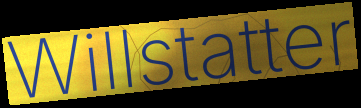
Willstatter